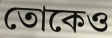
তোকেও